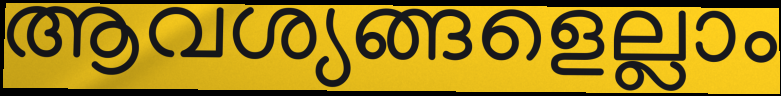
ആവശ്യങ്ങളെല്ലാം